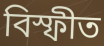
বিস্ফীত